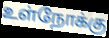
உள்நோக்கு